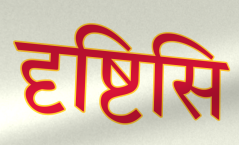
दृष्टिसि